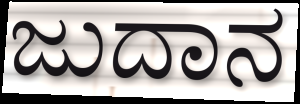
ಜುದಾನ